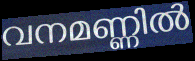
വനമണ്ണിൽ